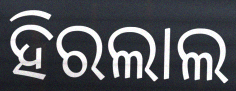
ହିରଲାଲ